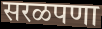
सरळपणा